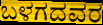
ಬಳಗದವರ